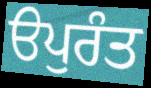
ੳਪੁਰੰਤ